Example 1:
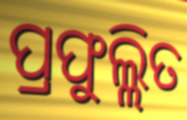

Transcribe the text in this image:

ପ୍ରଫୁଲ୍ଲିତ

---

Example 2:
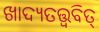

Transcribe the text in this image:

ଖାଦ୍ୟତତ୍ତ୍ୱବିତ୍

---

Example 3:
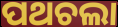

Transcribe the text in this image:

ପଥଚଲା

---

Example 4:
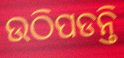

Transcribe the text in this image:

ଉଠିପଡନ୍ତି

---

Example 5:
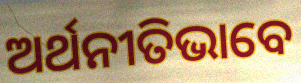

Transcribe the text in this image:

ଅର୍ଥନୀତିଭାବେ